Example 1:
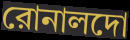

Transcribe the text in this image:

রোনালদো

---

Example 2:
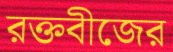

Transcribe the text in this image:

রক্তবীজের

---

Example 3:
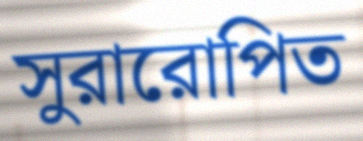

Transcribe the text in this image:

সুরারোপিত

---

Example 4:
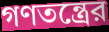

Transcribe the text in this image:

গণতন্ত্রের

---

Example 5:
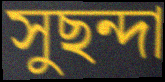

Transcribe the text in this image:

সুছন্দা